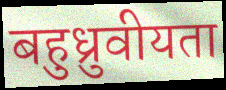
बहुध्रुवीयता